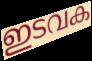
ഇടവക